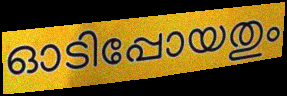
ഓടിപ്പോയതും